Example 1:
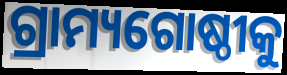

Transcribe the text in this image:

ଗ୍ରାମ୍ୟଗୋଷ୍ଠୀକୁ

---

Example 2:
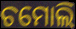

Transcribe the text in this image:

ଚମୋଲି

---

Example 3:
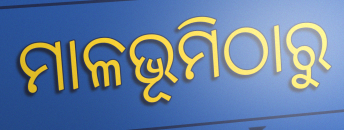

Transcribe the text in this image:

ମାଳଭୂମିଠାରୁ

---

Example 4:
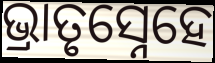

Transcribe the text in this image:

ଭ୍ରାତୃସ୍ନେହେ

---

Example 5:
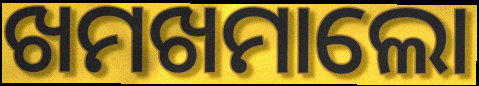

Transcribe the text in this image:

ଖମଖମାଲୋ